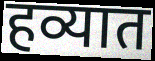
हव्यात